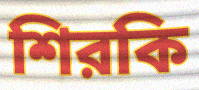
শিরকি